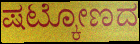
ಷಟ್ಕೋಣದ